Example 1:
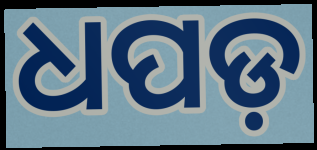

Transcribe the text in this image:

ଧପଡ଼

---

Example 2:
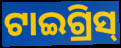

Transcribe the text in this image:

ଟାଇଗ୍ରିସ୍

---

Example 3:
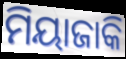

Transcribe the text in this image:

ମିୟାଜାକି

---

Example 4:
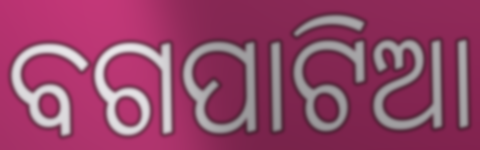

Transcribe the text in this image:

ବଗପାଟିଆ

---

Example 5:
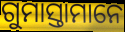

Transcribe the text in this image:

ଗୁମାସ୍ତାମାନେ